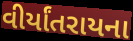
વીર્યાંતરાયના